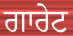
ਗਾਰੇਟ